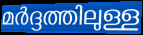
മർദ്ദത്തിലുള്ള